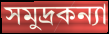
সমুদ্রকন্যা